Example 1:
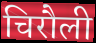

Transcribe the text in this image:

चिरौली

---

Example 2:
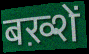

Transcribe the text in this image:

बख़्शें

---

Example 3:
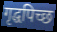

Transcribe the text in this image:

गृद्धपिच्छ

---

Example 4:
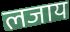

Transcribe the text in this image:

लजाय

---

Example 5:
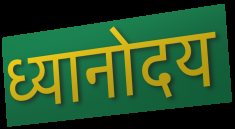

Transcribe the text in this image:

ध्यानोदय